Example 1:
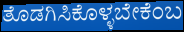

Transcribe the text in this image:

ತೊಡಗಿಸಿಕೊಳ್ಳಬೇಕೆಂಬ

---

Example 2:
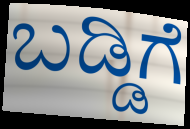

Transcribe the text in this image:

ಬಡ್ಡಿಗೆ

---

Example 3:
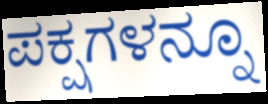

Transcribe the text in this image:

ಪಕ್ಷಗಳನ್ನೂ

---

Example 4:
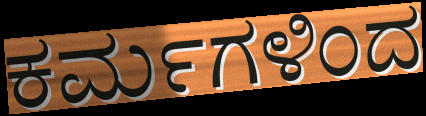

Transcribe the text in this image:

ಕರ್ಮಗಳಿಂದ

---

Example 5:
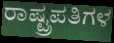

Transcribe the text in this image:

ರಾಷ್ಟ್ರಪತಿಗಳ